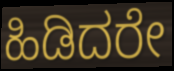
ಹಿಡಿದರೇ